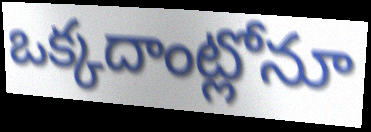
ఒక్కదాంట్లోనూ